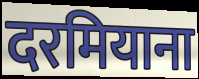
दरमियाना